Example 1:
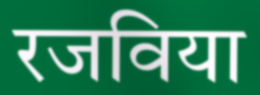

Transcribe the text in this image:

रजविया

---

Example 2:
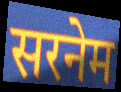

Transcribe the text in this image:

सरनेम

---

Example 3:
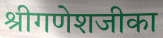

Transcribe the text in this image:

श्रीगणेशजीका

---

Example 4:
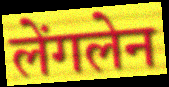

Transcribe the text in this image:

लेंगलेन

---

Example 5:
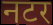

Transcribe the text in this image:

नटर